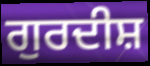
ਗੁਰਦੀਸ਼